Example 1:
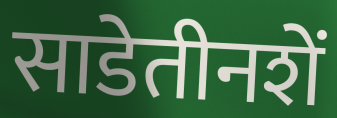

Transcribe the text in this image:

साडेतीनशें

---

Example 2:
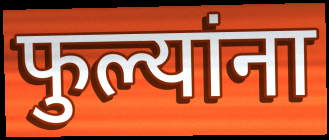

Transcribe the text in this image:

फुल्यांना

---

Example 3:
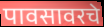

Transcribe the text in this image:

पावसावरचे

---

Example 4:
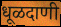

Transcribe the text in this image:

धूळदाणी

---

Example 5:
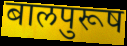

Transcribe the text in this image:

बालपुरूष